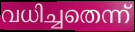
വധിച്ചതെന്ന്